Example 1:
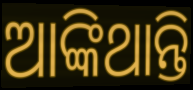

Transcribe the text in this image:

ଆଙ୍କିଥାନ୍ତି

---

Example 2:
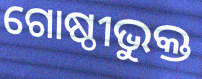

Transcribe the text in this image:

ଗୋଷ୍ଠୀଭୁକ୍ତ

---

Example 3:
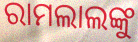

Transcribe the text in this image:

ରାମଲାଲଙ୍କୁ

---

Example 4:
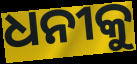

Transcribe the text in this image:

ଧନୀକୁ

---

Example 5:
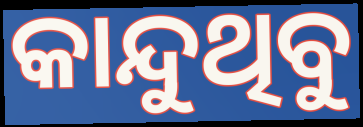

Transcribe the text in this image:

କାନ୍ଦୁଥିବୁ